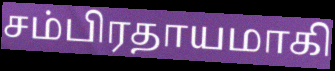
சம்பிரதாயமாகி